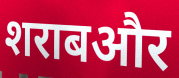
शराबऔर